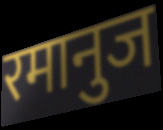
रमानुज